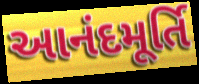
આનંદમૂર્તિ